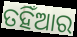
ତହିଁଆର